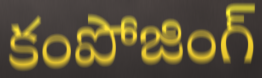
కంపోజింగ్